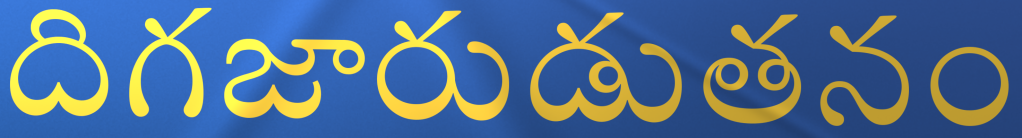
దిగజారుడుతనం